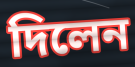
দিলেন